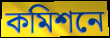
কমিশনে